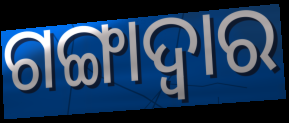
ଗଙ୍ଗାଦ୍ୱାର